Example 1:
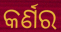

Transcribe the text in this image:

କର୍ଣର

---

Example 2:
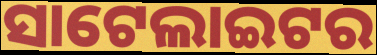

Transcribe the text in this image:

ସାଟେଲାଇଟର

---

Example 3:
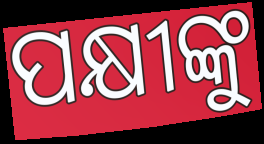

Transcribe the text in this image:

ପକ୍ଷୀଙ୍କୁ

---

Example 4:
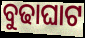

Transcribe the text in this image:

ବୁଢାଘାଟ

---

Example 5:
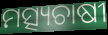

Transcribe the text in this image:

ମତ୍ସ୍ୟଚାଷୀ